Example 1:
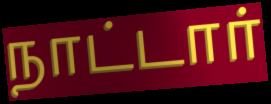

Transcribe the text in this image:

நாட்டார்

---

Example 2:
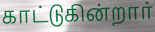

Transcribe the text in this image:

காட்டுகின்றார்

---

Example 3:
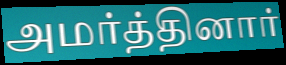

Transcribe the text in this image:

அமர்த்தினார்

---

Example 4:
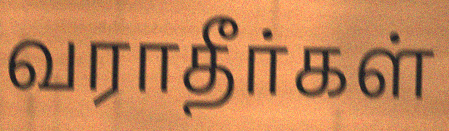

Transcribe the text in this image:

வராதீர்கள்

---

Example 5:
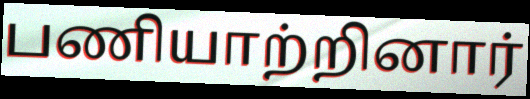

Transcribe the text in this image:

பணியாற்றினார்